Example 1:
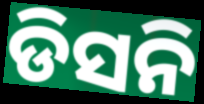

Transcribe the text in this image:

ଡିସନି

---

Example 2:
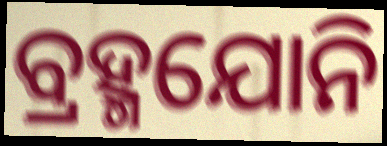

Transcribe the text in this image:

ବ୍ରହ୍ମଯୋନି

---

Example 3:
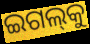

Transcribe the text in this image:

ଇଗଲ୍‌କୁ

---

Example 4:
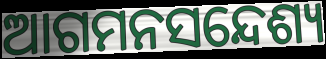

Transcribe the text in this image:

ଆଗମନସନ୍ଦେଶ୍ୟ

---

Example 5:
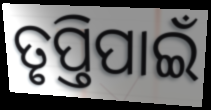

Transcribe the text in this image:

ତୃପ୍ତିପାଇଁ